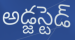
అడ్జస్టెడ్